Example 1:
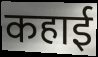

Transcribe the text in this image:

कहाई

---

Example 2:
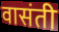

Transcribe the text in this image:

वासंती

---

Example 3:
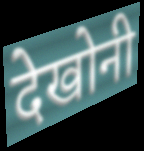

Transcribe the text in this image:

देखोनी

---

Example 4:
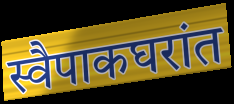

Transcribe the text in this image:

स्वैपाकघरांत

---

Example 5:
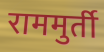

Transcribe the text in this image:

राममुर्ती